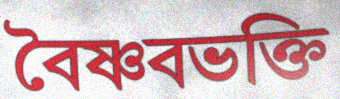
বৈষ্ণবভক্তি